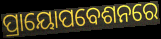
ପ୍ରାୟୋପବେଶନରେ